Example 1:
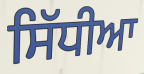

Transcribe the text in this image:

ਸਿੱਧੀਆ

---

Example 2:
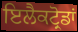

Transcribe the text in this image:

ਇਲੈਕਟ੍ਰੋਡਾਂ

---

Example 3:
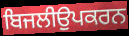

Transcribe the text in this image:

ਬਿਜਲੀਉਪਕਰਨ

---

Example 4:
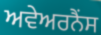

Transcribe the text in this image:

ਅਵੇਅਰਨੈਂਸ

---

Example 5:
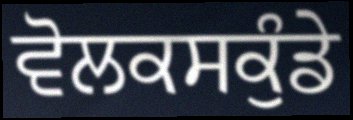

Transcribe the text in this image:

ਵੋਲਕਸਕੁੰਡੇ